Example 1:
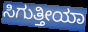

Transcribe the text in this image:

ಸಿಗುತ್ತೀಯಾ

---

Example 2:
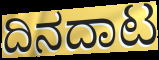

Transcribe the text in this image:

ದಿನದಾಟ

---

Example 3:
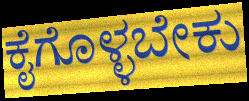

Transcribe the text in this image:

ಕೈಗೊಳ್ಳಬೇಕು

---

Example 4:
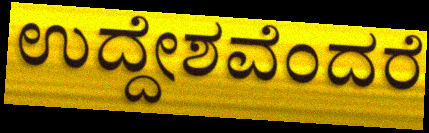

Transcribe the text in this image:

ಉದ್ದೇಶವೆಂದರೆ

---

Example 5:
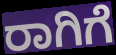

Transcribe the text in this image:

ರಾಗಿಗೆ